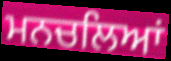
ਮਨਚਲਿਆਂ